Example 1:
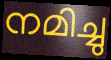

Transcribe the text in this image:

നമിച്ചു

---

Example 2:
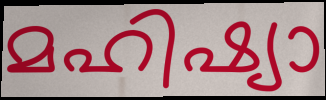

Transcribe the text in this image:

മഹിഷ്യാ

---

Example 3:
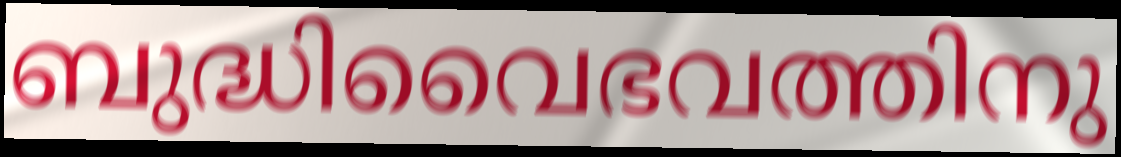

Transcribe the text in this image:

ബുദ്ധിവൈഭവത്തിനു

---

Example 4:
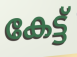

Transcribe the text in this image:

കേട്ട്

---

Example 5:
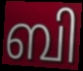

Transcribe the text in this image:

ബി